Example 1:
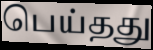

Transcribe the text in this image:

பெய்தது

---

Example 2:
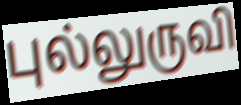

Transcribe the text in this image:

புல்லுருவி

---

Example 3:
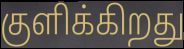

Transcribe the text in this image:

குளிக்கிறது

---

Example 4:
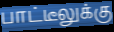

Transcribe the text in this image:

பாட்டீலுக்கு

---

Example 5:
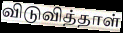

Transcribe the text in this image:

விடுவித்தாள்